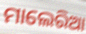
ମାଲେରିଆ